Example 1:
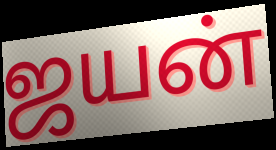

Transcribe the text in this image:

ஜயன்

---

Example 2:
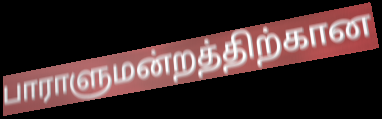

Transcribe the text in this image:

பாராளுமன்றத்திற்கான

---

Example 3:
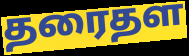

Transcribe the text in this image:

தரைதள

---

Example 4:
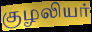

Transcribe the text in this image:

குழலியர்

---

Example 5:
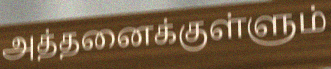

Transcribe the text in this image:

அத்தனைக்குள்ளும்